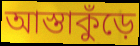
আস্তাকুঁড়ে